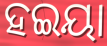
ହଇୟା